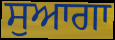
ਸੁਆਗਾ